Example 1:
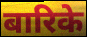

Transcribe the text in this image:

बारिके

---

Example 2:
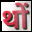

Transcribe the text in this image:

थों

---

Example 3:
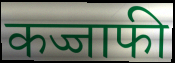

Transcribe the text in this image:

कज्जाफी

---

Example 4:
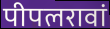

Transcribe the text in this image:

पीपलरावां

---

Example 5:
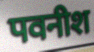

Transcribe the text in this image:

पवनीश